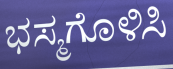
ಭಸ್ಮಗೊಳಿಸಿ